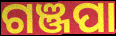
ଗଞ୍ଜପା